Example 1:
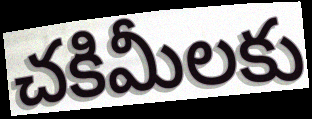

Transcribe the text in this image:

చకిమీలకు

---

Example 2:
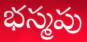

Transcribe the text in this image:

భస్మపు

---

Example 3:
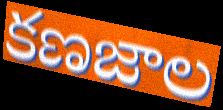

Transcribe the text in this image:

కణజాల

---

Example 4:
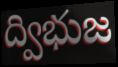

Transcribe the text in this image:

ద్విభుజ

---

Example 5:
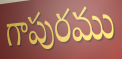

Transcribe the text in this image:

గాపురము